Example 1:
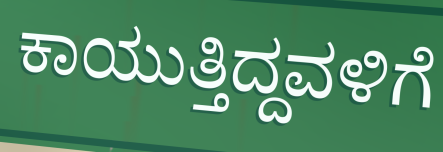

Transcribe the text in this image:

ಕಾಯುತ್ತಿದ್ದವಳಿಗೆ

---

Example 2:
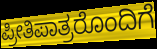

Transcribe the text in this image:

ಪ್ರೀತಿಪಾತ್ರರೊಂದಿಗೆ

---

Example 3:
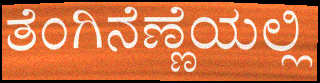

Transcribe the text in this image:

ತೆಂಗಿನೆಣ್ಣೆಯಲ್ಲಿ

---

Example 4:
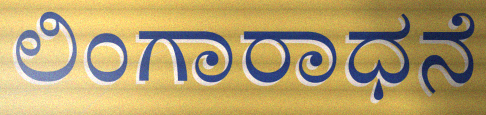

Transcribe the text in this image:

ಲಿಂಗಾರಾಧನೆ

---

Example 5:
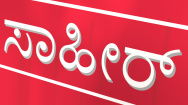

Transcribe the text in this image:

ಸಾಹೀರ್